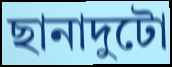
ছানাদুটো